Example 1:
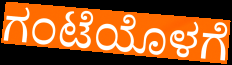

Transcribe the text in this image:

ಗಂಟೆಯೊಳಗೆ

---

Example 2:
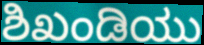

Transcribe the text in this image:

ಶಿಖಂಡಿಯು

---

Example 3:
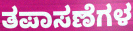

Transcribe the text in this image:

ತಪಾಸಣೆಗಳ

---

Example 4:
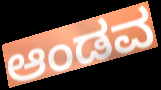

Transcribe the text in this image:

ಆಂಡವ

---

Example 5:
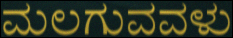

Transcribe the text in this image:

ಮಲಗುವವಳು